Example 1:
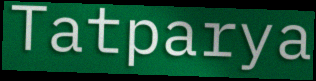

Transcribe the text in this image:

Tatparya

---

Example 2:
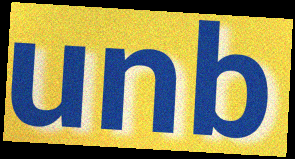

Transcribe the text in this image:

unb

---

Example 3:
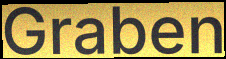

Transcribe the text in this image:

Graben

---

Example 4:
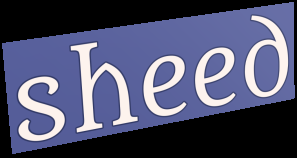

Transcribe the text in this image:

sheed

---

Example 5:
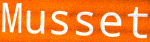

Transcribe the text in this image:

Musset